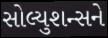
સોલ્યુશન્સને